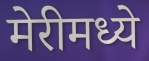
मेरीमध्ये